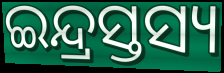
ଇନ୍ଦ୍ରସ୍ତସ୍ୟ